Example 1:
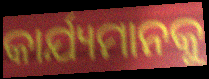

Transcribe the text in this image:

କାର୍ଯ୍ୟମାନକୁ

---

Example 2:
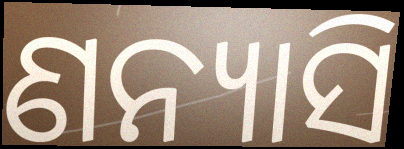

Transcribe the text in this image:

ଣନ୍ୟାସି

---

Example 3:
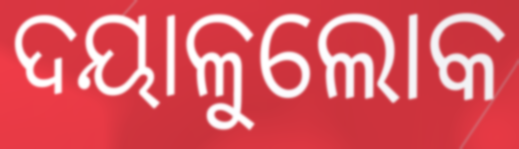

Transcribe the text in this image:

ଦୟାଳୁଲୋକ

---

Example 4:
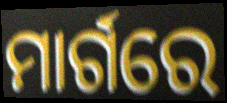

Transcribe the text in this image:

ମାର୍ଗରେ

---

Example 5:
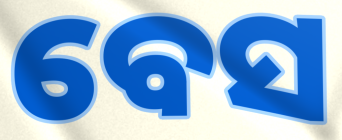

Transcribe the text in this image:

ବେସ